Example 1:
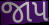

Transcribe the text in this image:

જાપ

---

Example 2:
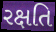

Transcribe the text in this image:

રક્ષતિ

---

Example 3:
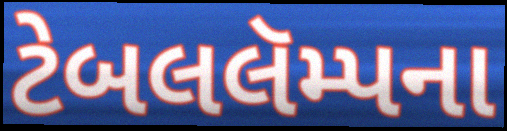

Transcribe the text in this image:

ટેબલલૅમ્પના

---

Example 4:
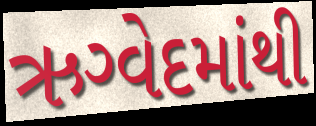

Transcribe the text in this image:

ઋગ્વેદમાંથી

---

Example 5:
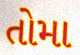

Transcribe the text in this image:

તોમા